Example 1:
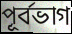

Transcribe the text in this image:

পূর্বভাগ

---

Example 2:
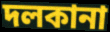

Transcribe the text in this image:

দলকানা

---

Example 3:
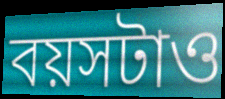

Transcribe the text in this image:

বয়সটাও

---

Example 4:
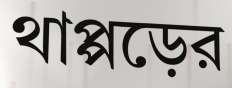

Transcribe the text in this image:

থাপ্পড়ের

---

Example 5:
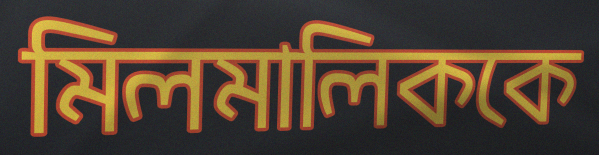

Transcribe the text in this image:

মিলমালিককে